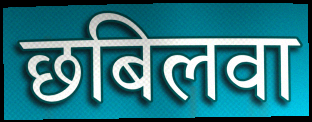
छबिलवा